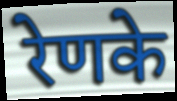
रेणके